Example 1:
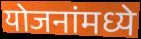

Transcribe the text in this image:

योजनांमध्ये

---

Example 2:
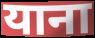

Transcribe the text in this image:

याना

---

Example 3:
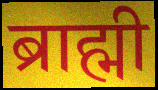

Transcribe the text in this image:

ब्राह्मी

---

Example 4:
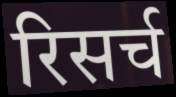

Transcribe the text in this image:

रिसर्च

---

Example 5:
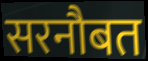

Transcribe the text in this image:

सरनौबत